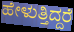
ಹೇಳುತ್ತಿದ್ದರೆ